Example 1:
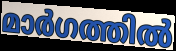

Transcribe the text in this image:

മാർഗത്തിൽ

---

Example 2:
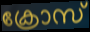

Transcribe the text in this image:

ക്രോസ്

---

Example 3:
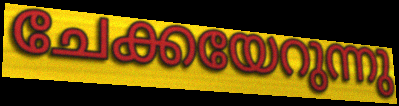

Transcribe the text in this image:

ചേക്കയേറുന്നു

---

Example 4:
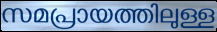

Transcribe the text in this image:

സമപ്രായത്തിലുള്ള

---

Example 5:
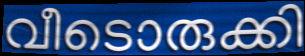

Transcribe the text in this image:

വീടൊരുക്കി